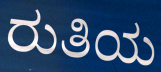
ರುತಿಯ